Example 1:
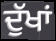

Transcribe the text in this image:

ਦੁੱਖਾਂ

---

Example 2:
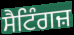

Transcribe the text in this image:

ਸੈਟਿੰਗਜ਼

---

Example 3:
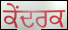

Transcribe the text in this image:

ਕੇਂਦਰਕ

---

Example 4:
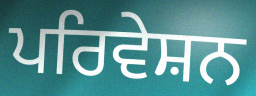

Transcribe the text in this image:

ਪਰਿਵੇਸ਼ਨ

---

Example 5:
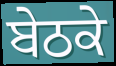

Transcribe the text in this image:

ਬੇਠਕੇ